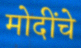
मोदींचे